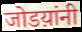
जोडय़ांनी